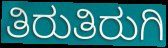
ತಿರುತಿರುಗಿ